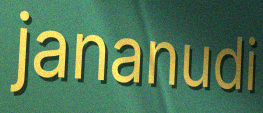
jananudi